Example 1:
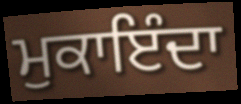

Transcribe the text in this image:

ਮੁਕਾਇੰਦਾ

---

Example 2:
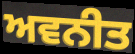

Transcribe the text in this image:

ਅਵਨੀਤ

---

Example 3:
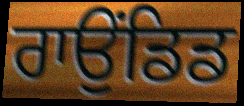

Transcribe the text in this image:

ਰਾਉਂਡਿਡ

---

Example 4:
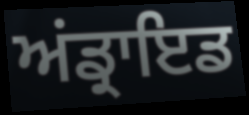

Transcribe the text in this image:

ਅਂਡ੍ਰਾਇਡ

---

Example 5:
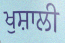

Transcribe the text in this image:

ਖੁਸ਼ਾਲੀ